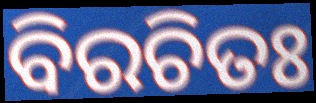
ବିରଚିତଃ